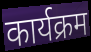
कार्यक्रम